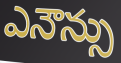
ఎనౌన్సు